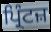
ਪ੍ਰਿੰਟਜ਼